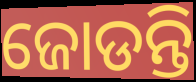
ଜୋଡନ୍ତି